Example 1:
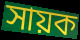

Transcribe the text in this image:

সায়ক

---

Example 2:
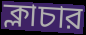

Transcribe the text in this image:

ক্লাচার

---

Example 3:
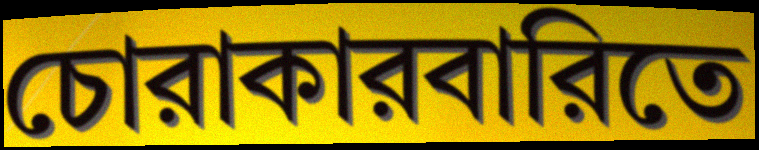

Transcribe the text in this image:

চোরাকারবারিতে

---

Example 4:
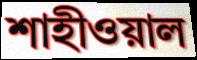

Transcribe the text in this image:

শাহীওয়াল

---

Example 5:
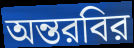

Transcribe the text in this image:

অন্তরবির